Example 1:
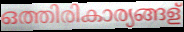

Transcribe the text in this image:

ഒത്തിരികാര്യങ്ങള്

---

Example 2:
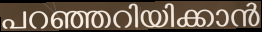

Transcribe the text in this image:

പറഞ്ഞറിയിക്കാൻ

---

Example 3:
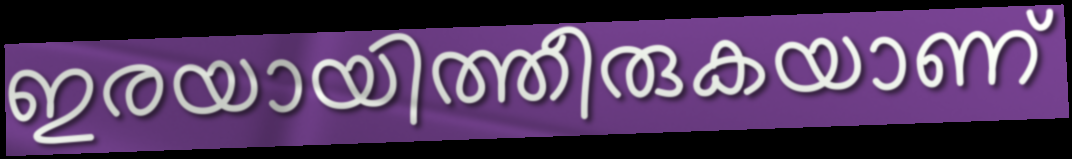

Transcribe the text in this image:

ഇരയായിത്തീരുകയാണ്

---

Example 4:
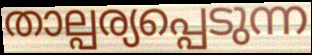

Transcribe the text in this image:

താല്പര്യപ്പെടുന്ന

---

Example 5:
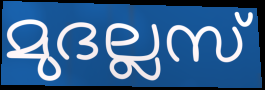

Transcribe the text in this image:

മുദല്ലസ്